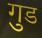
गुड